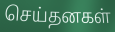
செய்தனகள்